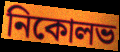
নিকোলভ